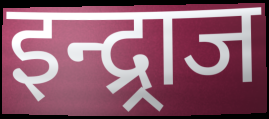
इन्द्र्राज